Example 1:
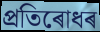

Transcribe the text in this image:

প্ৰতিৰোধৰ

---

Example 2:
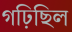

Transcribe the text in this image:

গঢ়িছিল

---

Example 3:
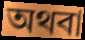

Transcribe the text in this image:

অথবা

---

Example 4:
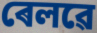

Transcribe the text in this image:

ৰেলৱে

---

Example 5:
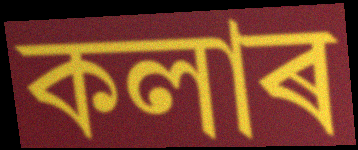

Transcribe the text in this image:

কলাৰ